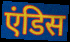
एंडिस